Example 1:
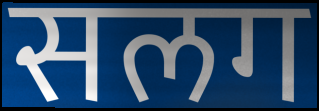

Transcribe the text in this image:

सलग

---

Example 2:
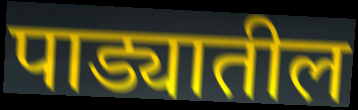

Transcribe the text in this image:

पाड्यातील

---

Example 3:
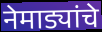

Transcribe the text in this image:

नेमाड्यांचे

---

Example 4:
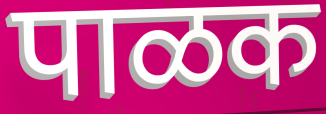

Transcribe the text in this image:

पाळक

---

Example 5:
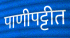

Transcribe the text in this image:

पाणीपट्टीत